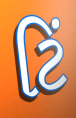
ટિં